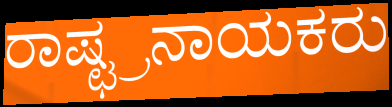
ರಾಷ್ಟ್ರನಾಯಕರು